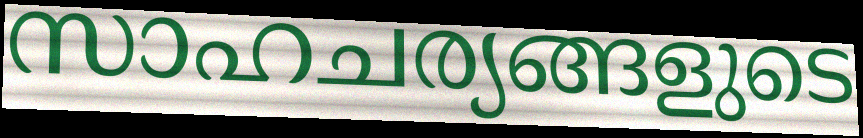
സാഹചര്യങ്ങളുടെ